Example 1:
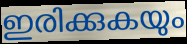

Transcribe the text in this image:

ഇരിക്കുകയും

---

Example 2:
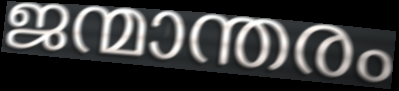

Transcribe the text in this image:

ജന്മാന്തരം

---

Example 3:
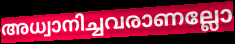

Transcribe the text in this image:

അധ്വാനിച്ചവരാണല്ലോ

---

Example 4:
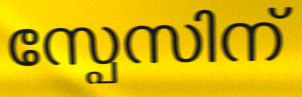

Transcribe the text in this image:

സ്പേസിന്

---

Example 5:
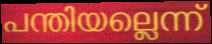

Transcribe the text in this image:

പന്തിയല്ലെന്ന്